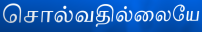
சொல்வதில்லையே